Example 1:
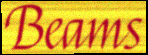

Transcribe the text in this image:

Beams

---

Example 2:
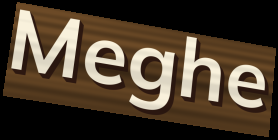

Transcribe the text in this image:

Meghe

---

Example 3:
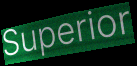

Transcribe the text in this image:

Superior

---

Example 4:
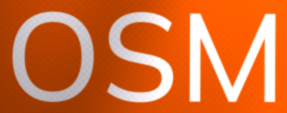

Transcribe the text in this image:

OSM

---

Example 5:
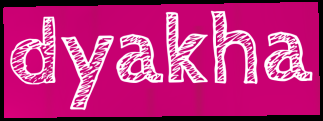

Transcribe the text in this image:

dyakha